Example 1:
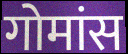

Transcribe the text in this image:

गोमांस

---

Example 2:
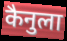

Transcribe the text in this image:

कैनुला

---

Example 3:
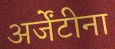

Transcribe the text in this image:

अर्जेंटीना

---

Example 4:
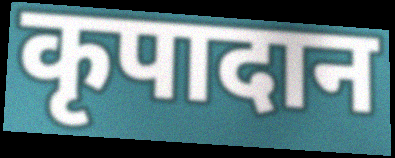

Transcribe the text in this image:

कृपादान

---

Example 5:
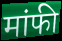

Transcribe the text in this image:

मांफी